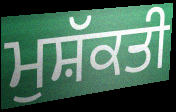
ਮੁਸ਼ੱਕਤੀ